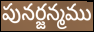
పునర్జన్మము